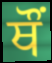
ਥੌਂ